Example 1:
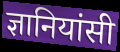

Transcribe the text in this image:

ज्ञानियांसी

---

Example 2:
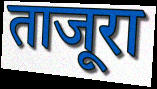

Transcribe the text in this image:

ताजूरा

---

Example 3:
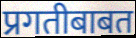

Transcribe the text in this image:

प्रगतीबाबत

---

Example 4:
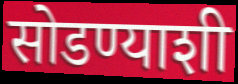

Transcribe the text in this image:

सोडण्याशी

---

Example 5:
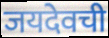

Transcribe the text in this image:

जयदेवची